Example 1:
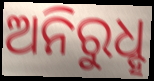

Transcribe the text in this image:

ଅନିରୁଧ୍ହ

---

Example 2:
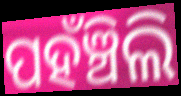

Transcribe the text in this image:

ପହଁଞ୍ଚିଲି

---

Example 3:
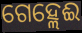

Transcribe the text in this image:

ଗେହ୍ଲେଈ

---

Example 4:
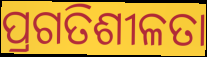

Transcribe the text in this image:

ପ୍ରଗତିଶୀଳତା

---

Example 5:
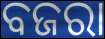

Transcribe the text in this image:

ବଜରା